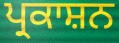
ਪ੍ਰਕਾਸ਼ਨ